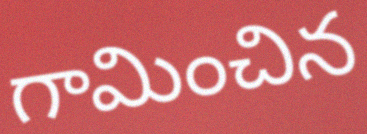
గామించిన